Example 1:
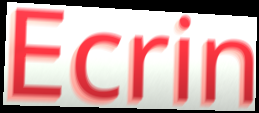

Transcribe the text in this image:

Ecrin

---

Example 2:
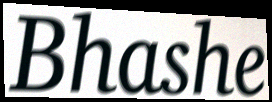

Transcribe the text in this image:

Bhashe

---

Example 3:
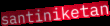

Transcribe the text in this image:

santiniketan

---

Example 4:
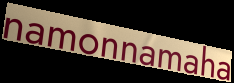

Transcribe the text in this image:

namonnamaha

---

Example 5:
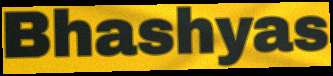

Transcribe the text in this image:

Bhashyas